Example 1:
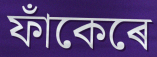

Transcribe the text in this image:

ফাঁকেৰে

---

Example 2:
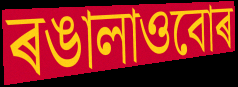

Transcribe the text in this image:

ৰঙালাওবোৰ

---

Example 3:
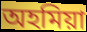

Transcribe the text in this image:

অহমিয়া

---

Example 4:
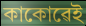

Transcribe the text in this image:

কাকোৱেই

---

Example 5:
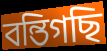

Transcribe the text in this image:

বন্তিগছি